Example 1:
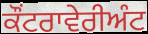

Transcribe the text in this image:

ਕੌਂਟਰਾਵੇਰੀਅੰਟ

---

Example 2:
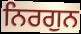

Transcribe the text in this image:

ਨਿਰਗੁਨ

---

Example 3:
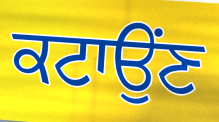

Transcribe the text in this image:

ਕਟਾਉਂਣ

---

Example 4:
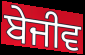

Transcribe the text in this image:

ਬੇਜੀਵ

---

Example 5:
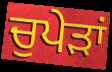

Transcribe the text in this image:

ਚੁਪੇੜਾਂ